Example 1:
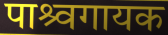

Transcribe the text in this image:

पाश्र्वगायक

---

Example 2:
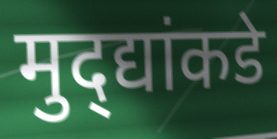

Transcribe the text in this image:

मुद्द्यांकडे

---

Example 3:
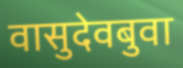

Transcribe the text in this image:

वासुदेवबुवा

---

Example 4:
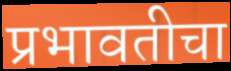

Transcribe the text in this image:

प्रभावतीचा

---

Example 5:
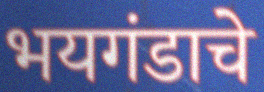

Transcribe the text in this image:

भयगंडाचे